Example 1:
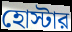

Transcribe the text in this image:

হোস্টার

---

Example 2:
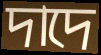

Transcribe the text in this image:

দাদে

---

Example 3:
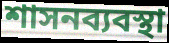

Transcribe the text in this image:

শাসনব্যবস্থা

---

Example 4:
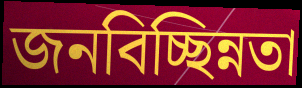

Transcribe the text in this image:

জনবিচ্ছিন্নতা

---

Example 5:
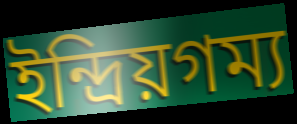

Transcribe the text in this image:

ইন্দ্রিয়গম্য